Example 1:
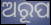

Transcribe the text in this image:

ଅରୂପ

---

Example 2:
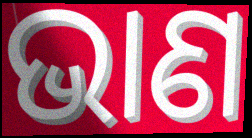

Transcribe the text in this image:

ଭାଣ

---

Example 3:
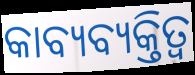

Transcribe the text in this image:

କାବ୍ୟବ୍ୟକ୍ତିତ୍ୱ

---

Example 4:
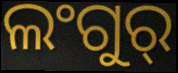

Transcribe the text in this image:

ଲଂଗୁର୍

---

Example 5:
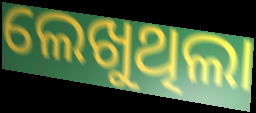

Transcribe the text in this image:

ଲେଖୁଥିଲା